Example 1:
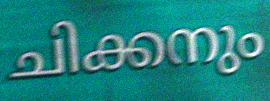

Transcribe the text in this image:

ചിക്കനും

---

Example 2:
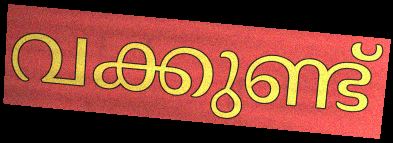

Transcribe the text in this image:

വക്കുണ്ട്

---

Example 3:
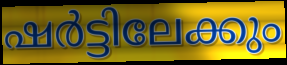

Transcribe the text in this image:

ഷർട്ടിലേക്കും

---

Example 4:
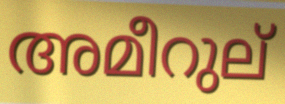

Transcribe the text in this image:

അമീറുല്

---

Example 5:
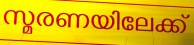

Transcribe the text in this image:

സ്മരണയിലേക്ക്